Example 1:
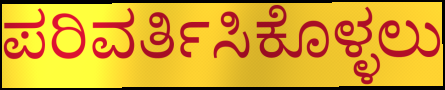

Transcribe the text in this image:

ಪರಿವರ್ತಿಸಿಕೊಳ್ಳಲು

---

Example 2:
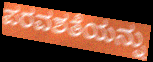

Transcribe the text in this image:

ಪರವಶತೆಯನ್ನು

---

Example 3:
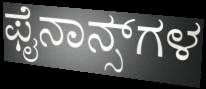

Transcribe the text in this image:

ಫೈನಾನ್ಸ್‌ಗಳ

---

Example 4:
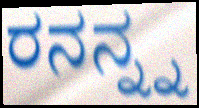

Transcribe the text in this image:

ರನನ್ನ್ನ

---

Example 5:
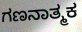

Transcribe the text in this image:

ಗಣನಾತ್ಮಕ